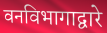
वनविभागाद्वारे